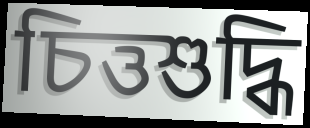
চিত্তশুদ্ধি